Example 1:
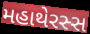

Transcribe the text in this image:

મહાથેરસ્સ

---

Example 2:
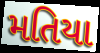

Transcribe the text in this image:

મતિયા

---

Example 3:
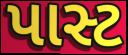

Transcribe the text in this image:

પાસ્ટ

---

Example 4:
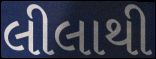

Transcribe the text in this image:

લીલાથી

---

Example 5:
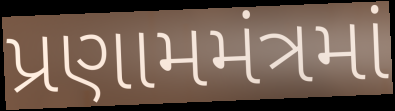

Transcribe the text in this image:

પ્રણામમંત્રમાં